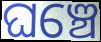
ଘଞ୍ଚେ